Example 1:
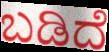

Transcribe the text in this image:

ಬಡಿದೆ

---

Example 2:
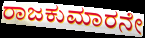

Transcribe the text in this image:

ರಾಜಕುಮಾರನೇ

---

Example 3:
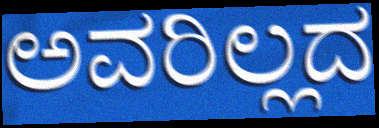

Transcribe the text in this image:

ಅವರಿಲ್ಲದ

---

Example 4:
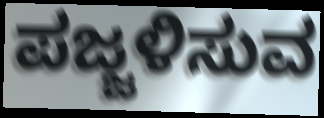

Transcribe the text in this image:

ಪಜ್ಜಳಿಸುವ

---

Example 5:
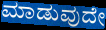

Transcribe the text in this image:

ಮಾಡುವುದೇ